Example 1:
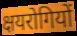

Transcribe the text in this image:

क्षयरोगियों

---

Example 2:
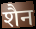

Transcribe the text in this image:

शैन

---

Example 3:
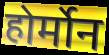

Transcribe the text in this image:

होर्मोन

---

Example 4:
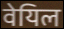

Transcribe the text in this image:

वेयिल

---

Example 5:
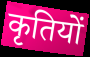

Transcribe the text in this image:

कृतियों